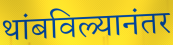
थांबविल्यानंतर